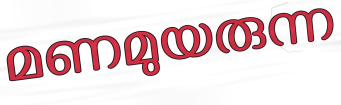
മണമുയരുന്ന